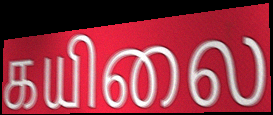
கயிலை